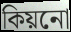
কিয়নো